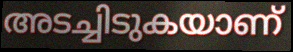
അടച്ചിടുകയാണ്